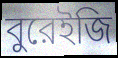
বুরেইজি